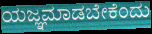
ಯಜ್ಞಮಾಡಬೇಕೆಂದು